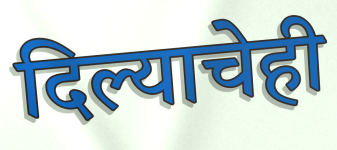
दिल्याचेही